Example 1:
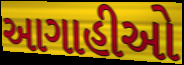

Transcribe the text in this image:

આગાહીઓ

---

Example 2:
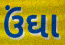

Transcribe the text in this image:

ઉંઘા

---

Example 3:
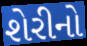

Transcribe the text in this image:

શેરીનો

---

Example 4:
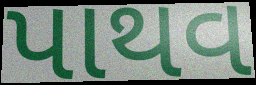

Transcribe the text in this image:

પાથવ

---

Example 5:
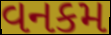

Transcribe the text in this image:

વનકમ